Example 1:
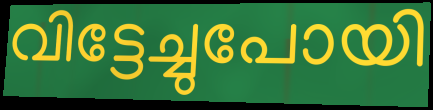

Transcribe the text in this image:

വിട്ടേച്ചുപോയി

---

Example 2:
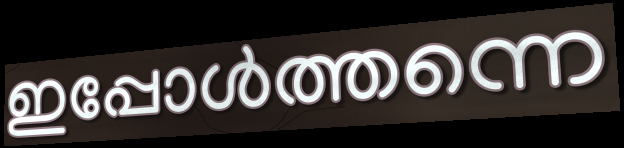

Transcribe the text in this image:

ഇപ്പോൾത്തന്നെ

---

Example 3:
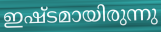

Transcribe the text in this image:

ഇഷ്ടമായിരുന്നു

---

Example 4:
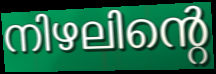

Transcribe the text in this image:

നിഴലിന്റെ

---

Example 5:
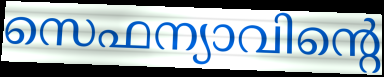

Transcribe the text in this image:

സെഫന്യാവിന്റെ